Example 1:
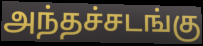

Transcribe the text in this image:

அந்தச்சடங்கு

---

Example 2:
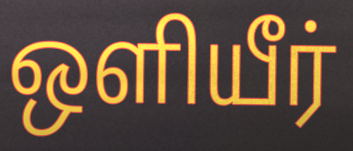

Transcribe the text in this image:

ஒளியீர்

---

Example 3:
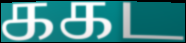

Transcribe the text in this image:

ககட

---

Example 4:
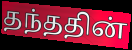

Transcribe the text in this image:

தந்ததின்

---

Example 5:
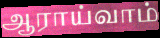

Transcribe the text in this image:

ஆராய்வாம்